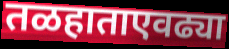
तळहाताएवढ्या